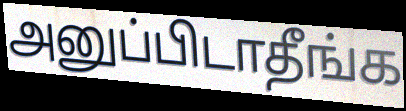
அனுப்பிடாதீங்க